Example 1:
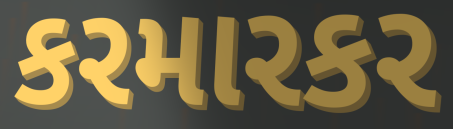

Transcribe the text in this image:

કરમારકર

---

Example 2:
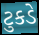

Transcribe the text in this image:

ટુકડે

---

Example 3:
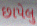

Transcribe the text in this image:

છાપેલુ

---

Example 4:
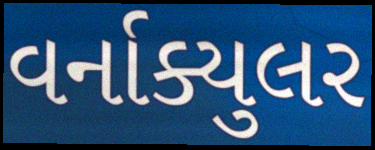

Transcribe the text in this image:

વર્નાક્યુલર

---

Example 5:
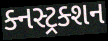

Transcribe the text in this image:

ક્નસ્ટ્રક્શન